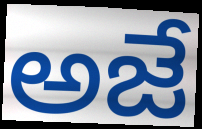
అజే